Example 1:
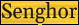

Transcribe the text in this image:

Senghor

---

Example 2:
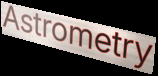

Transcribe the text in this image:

Astrometry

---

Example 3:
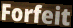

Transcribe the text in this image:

Forfeit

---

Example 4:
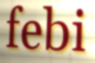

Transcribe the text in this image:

febi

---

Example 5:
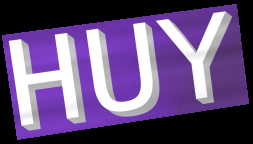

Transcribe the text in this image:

HUY